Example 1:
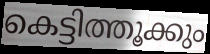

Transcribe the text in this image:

കെട്ടിത്തൂക്കും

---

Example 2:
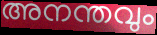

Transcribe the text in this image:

അനന്തവും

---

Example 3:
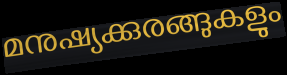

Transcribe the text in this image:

മനുഷ്യക്കുരങ്ങുകളും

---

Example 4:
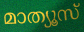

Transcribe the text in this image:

മാത്യൂസ്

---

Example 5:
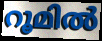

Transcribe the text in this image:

റൂമിൽ